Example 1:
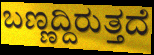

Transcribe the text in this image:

ಬಣ್ಣದ್ದಿರುತ್ತದೆ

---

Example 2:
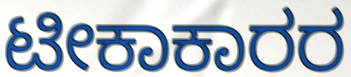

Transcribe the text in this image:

ಟೀಕಾಕಾರರ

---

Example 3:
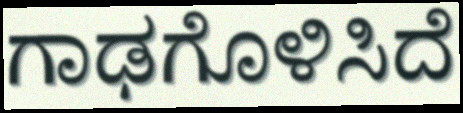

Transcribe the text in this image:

ಗಾಢಗೊಳಿಸಿದೆ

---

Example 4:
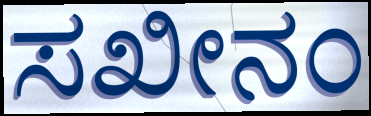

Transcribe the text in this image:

ಸಖೀನಂ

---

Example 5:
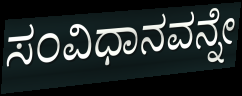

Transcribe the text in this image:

ಸಂವಿಧಾನವನ್ನೇ